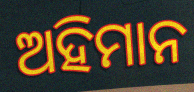
ଅହିମାନ